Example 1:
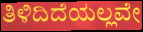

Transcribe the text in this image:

ತಿಳಿದಿದೆಯಲ್ಲವೇ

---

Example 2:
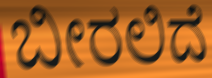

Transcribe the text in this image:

ಬೀರಲಿದೆ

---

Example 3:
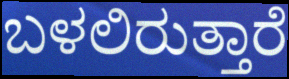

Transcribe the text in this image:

ಬಳಲಿರುತ್ತಾರೆ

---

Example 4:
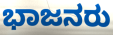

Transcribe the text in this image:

ಭಾಜನರು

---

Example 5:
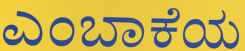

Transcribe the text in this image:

ಎಂಬಾಕೆಯ